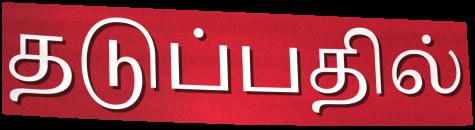
தடுப்பதில்